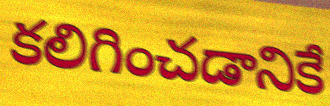
కలిగించడానికే